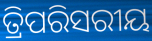
ତ୍ରିପରିସରୀୟ